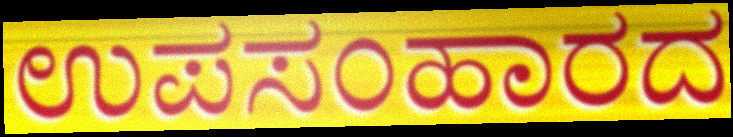
ಉಪಸಂಹಾರದ